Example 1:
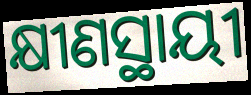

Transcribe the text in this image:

କ୍ଷୀଣସ୍ଥାୟୀ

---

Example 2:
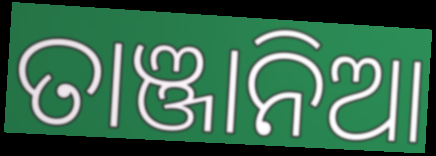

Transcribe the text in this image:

ତାଞ୍ଜାନିଆ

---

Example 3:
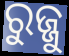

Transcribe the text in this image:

ରୁଜ୍ଜୁ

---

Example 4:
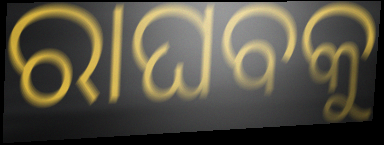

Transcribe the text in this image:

ରାଘବକୁ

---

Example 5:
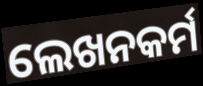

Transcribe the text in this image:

ଲେଖନକର୍ମ